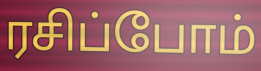
ரசிப்போம்